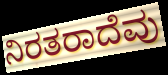
ನಿರತರಾದೆವು